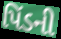
પિંડની